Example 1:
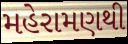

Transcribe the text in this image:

મહેરામણથી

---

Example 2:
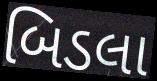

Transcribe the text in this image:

બિડલા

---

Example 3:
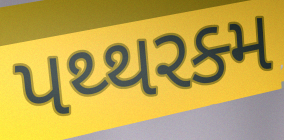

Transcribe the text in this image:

પથ્થરક્મ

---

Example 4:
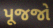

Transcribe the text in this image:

પૂજજો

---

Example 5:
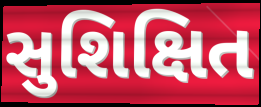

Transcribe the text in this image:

સુશિક્ષિત